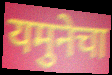
यमुनेचा